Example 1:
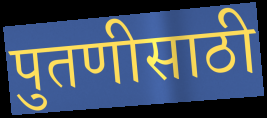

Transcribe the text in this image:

पुतणीसाठी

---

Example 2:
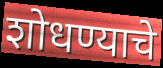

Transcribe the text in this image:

शोधण्याचे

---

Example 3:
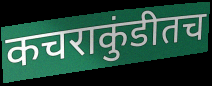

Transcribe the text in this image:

कचराकुंडीतच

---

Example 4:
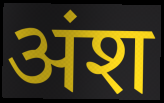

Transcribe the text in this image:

अंश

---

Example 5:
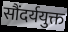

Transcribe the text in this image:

सौंदर्ययुक्त